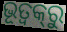
ଭୂତ୍ଵକ୍‌ରୁ